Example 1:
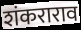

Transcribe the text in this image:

शंकराराव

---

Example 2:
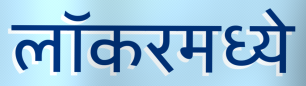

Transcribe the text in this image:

लॉकरमध्ये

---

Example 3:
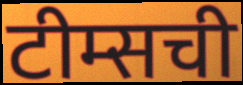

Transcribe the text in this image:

टीम्सची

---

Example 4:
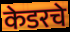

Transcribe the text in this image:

केडरचे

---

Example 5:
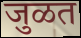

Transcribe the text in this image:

जुळत